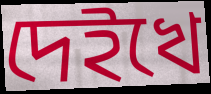
দেইখে